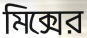
মিক্সের